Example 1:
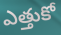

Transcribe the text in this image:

ఎత్తుకో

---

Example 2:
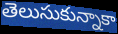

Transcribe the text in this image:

తెలుసుకున్నాకా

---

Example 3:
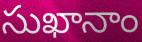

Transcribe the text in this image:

సుఖానాం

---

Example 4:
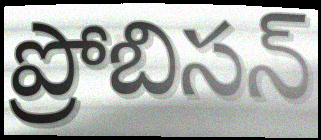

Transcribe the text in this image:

ప్రోబిసన్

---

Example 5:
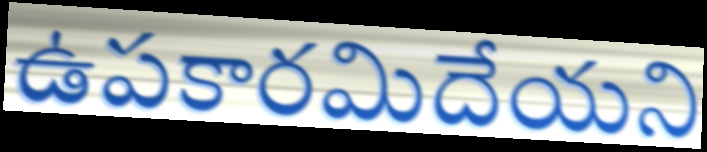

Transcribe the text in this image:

ఉపకారమిదేయని